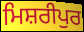
ਮਿਸ਼ਰੀਪੁਰ